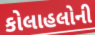
કોલાહલોની